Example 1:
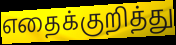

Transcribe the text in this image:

எதைக்குறித்து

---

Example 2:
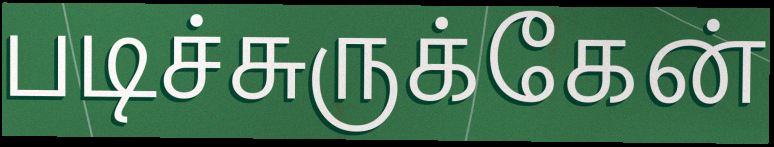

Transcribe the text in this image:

படிச்சுருக்கேன்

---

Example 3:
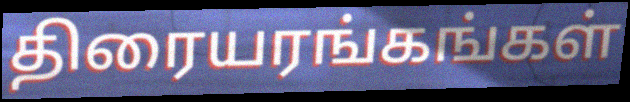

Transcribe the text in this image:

திரையரங்கங்கள்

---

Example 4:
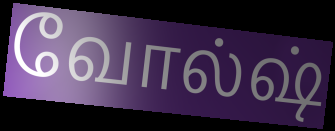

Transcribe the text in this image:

வோல்ஷ்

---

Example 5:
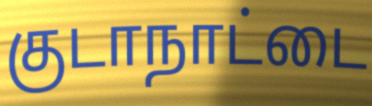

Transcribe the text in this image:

குடாநாட்டை